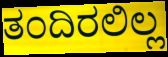
ತಂದಿರಲಿಲ್ಲ